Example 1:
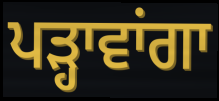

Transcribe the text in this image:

ਪੜ੍ਹਾਵਾਂਗਾ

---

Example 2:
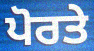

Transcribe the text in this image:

ਪੋਰਤੇ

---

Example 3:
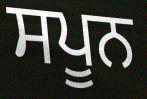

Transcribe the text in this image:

ਸਪੂਨ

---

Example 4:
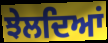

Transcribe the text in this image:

ਝੇਲਦਿਆਂ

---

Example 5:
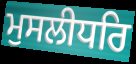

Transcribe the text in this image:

ਮੁਸਲੀਧਰਿ